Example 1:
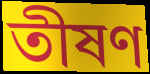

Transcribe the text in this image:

তীষণ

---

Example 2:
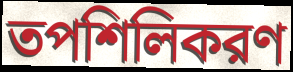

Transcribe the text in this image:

তপশিলিকরণ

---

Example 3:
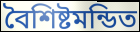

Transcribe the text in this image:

বৈশিষ্টমন্ডিত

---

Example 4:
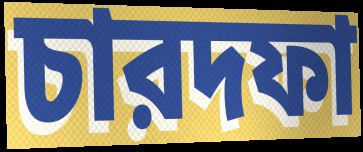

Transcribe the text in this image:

চারদফা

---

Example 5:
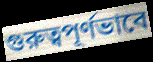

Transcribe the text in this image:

গুরুত্বপূর্ণভাবে